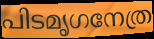
പിടമൃഗനേത്ര